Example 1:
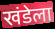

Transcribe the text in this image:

खंडेला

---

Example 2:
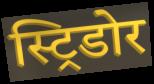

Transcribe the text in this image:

स्ट्रिडोर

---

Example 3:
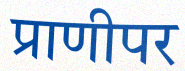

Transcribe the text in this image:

प्राणीपर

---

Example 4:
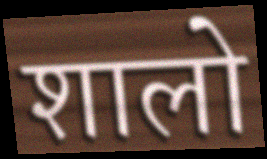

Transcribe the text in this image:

शालो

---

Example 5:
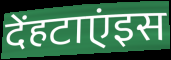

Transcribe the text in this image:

देंहटाएंइस